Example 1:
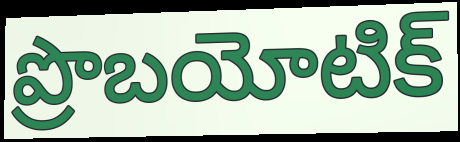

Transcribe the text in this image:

ప్రొబయోటిక్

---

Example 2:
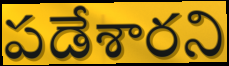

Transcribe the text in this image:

పడేశారని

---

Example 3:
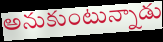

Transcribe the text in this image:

అనుకుంటున్నాడు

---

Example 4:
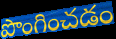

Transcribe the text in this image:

పొంగించడం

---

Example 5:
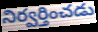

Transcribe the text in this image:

నిర్వర్తించడు